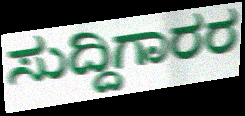
ಸುದ್ದಿಗಾರರ